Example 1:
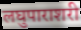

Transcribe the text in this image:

लघुपाराशरी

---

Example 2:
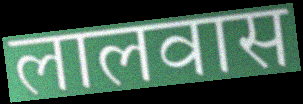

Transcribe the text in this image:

लालवास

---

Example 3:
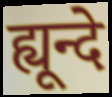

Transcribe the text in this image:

ह्यून्दे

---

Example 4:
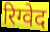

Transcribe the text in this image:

रिग्वेद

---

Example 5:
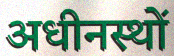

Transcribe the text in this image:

अधीनस्थों